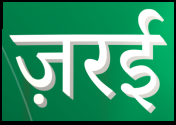
ज़रई